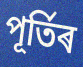
পূৰ্তিৰ